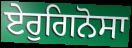
ਏਰੁਗਿਨੋਸਾ